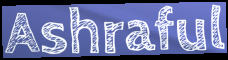
Ashraful